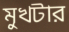
মুখটার